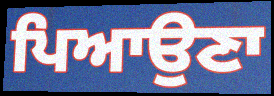
ਪਿਆਉਣਾ